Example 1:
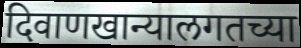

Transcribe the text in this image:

दिवाणखान्यालगतच्या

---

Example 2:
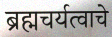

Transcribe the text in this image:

ब्रह्मचर्यत्वाचे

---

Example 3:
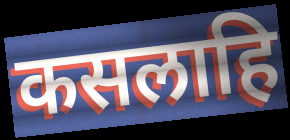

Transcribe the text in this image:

कसलाहि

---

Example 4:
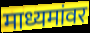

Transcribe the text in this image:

माध्यमांवर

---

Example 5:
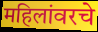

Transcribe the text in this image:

महिलांवरचे